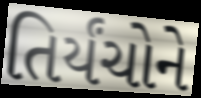
તિર્યંચોને